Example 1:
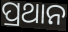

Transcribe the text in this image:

ପ୍ରଥାନ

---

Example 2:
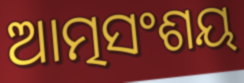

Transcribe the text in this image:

ଆତ୍ମସଂଶୟ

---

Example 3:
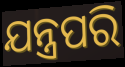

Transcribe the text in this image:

ଯନ୍ତ୍ରପରି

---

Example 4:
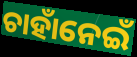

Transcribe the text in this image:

ଚାହାଁନେଇଁ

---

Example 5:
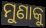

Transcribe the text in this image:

ମୁଣାକୁ